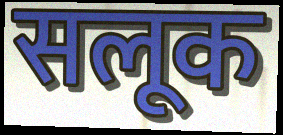
सलूक